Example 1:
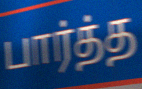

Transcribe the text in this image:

பார்த்த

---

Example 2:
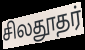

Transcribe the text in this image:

சிலதூதர்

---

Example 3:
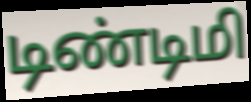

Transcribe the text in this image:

டிண்டிமி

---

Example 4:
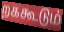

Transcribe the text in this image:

றககூடும்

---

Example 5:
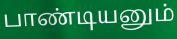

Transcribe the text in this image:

பாண்டியனும்